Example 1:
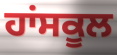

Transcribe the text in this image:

ਹਾਂਸਕੂਲ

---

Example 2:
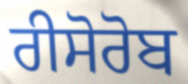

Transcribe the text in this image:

ਰੀਸੋਰੋਬ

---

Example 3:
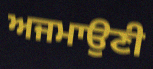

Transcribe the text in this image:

ਅਜਮਾਉਣੀ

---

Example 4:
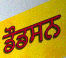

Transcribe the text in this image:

ਡੌਡਸਨ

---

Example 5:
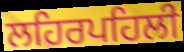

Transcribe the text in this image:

ਲਹਿਰਪਹਿਲੀ